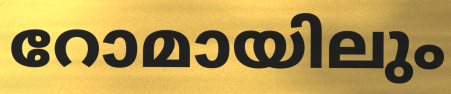
റോമായിലും